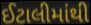
ઈટાલીમાંથી